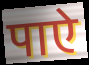
पाऐ